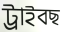
ট্ৰাইবছ